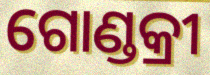
ଗୋଣ୍ଡକ୍ରୀ